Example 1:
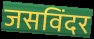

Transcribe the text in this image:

जसविंदर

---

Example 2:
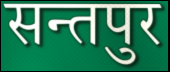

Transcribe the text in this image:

सन्तपुर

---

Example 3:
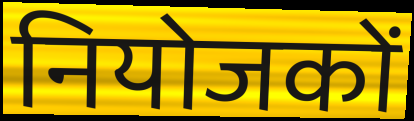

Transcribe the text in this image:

नियोजकों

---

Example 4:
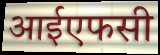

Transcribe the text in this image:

आईएफसी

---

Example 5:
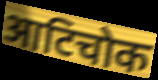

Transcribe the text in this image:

आटिचोक